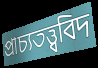
প্রাচ্যতত্ত্ববিদ